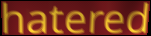
hatered